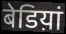
बेडिय़ां